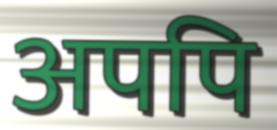
अपपि